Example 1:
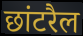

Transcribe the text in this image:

छांटरैल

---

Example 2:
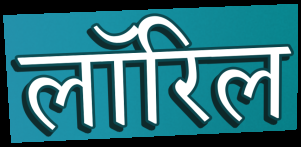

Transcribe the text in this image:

लॉरिल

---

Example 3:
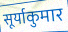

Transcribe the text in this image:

सूर्याकुमार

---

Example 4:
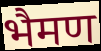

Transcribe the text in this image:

भैमण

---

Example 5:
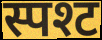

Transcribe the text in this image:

स्पश्ट